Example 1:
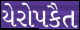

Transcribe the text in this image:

યેરોપકૈત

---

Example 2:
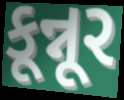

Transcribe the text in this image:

કૂન્નૂર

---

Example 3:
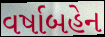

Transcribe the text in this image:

વર્ષાબહેન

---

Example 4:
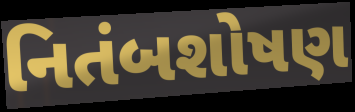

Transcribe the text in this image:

નિતંબશોષણ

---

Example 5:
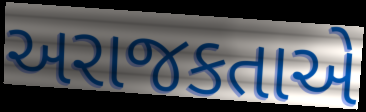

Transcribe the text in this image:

અરાજકતાએ